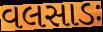
વલસાડઃ